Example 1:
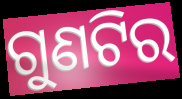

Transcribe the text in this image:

ଗୁଣଟିର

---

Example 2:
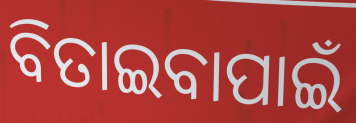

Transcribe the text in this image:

ବିତାଇବାପାଇଁ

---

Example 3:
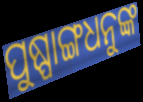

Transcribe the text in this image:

ପୁଷ୍ପାଙ୍ଗଧନୁଙ୍କ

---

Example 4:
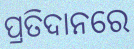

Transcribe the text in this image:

ପ୍ରତିଦାନରେ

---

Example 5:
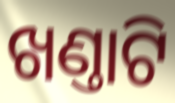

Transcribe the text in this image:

ଖଣ୍ତାଟି